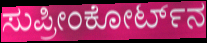
ಸುಪ್ರೀಂಕೋರ್ಟ್‌ನ